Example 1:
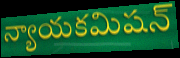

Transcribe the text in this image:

న్యాయకమిషన్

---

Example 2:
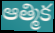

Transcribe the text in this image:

ఆత్మిక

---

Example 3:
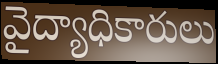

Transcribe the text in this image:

వైద్యాధికారులు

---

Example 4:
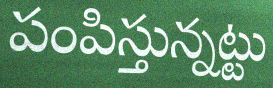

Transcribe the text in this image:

పంపిస్తున్నట్టు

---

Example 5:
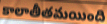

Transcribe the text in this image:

కాలాతీతమయింది